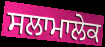
ਸਲਾਮਾਲੇਕ